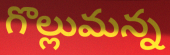
గొల్లుమన్న